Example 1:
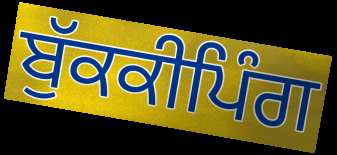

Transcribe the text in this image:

ਬੁੱਕਕੀਪਿੰਗ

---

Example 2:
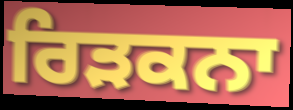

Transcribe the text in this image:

ਰਿੜਕਨਾ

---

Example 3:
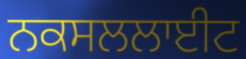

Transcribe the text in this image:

ਨਕਸਲਲਾਈਟ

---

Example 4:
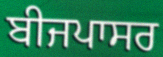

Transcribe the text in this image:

ਬੀਜਪਾਸਰ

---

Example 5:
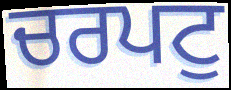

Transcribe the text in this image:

ਚਰਪਟੁ